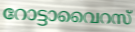
റോട്ടാവൈറസ്